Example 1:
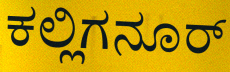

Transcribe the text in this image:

ಕಲ್ಲಿಗನೂರ್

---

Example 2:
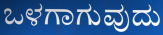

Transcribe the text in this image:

ಒಳಗಾಗುವುದು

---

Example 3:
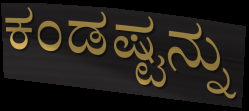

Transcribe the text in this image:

ಕಂಡಷ್ಟನ್ನು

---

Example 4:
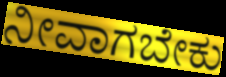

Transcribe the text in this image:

ನೀವಾಗಬೇಕು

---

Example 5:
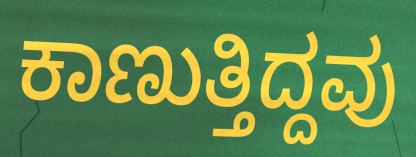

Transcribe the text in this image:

ಕಾಣುತ್ತಿದ್ದವು